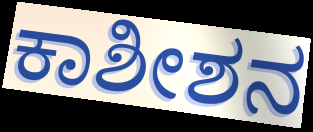
ಕಾಶೀಶನ